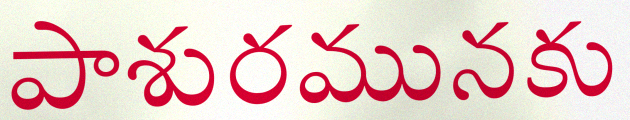
పాశురమునకు